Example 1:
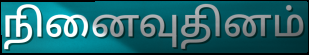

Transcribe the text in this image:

நினைவுதினம்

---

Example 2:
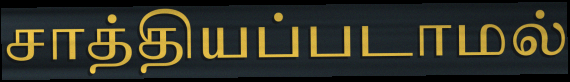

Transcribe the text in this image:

சாத்தியப்படாமல்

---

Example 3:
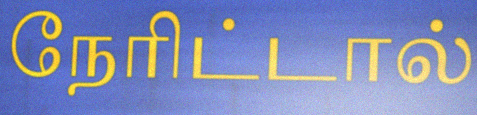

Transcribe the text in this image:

நேரிட்டால்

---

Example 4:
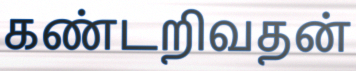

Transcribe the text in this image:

கண்டறிவதன்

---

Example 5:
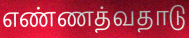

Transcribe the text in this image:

எண்ணத்வதாடு